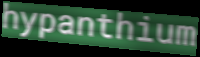
hypanthium